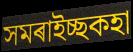
সমৰাইচ্ছকহা